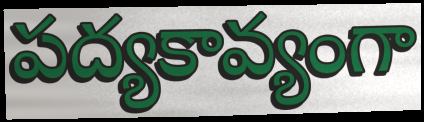
పద్యకావ్యంగా